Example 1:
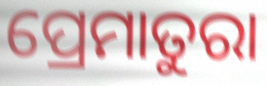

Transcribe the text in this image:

ପ୍ରେମାତୁରା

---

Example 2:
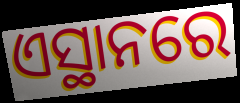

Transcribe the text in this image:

ଏସ୍ଥାନରେ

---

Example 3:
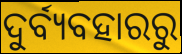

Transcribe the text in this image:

ଦୁର୍ବ୍ୟବହାରରୁ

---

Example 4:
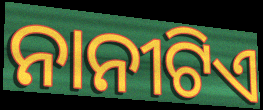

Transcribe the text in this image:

ନାନୀଟିଏ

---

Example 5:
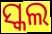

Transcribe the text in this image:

ସ୍କଲ